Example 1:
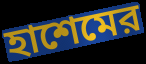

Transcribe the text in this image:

হাশেমের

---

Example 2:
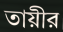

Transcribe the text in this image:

তায়ীর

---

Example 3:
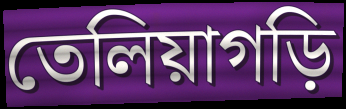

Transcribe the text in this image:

তেলিয়াগড়ি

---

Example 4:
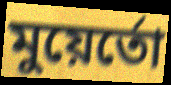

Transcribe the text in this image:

মুয়ের্তো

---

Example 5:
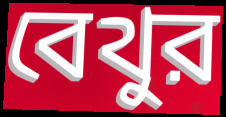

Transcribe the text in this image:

বেথুর